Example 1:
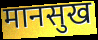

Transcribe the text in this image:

मानसुख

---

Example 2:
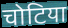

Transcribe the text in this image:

चोटिया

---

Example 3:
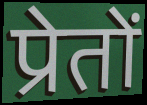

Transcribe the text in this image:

प्रेतों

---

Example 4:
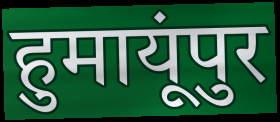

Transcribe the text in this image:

हुमायूंपुर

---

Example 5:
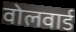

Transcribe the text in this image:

वोलवार्ड